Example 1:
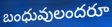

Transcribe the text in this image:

బంధువులందరూ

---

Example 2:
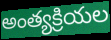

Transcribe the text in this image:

అంత్యక్రియల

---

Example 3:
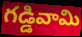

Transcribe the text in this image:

గడ్డివామి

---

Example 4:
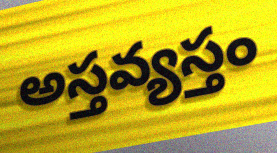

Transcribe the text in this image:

అస్తవ్యస్తం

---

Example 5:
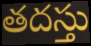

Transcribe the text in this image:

తదస్తు